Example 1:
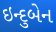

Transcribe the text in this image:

ઇન્દુબેન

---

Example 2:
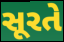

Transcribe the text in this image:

સૂરતે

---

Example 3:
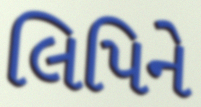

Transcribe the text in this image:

લિપિને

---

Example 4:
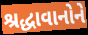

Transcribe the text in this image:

શ્રદ્ધાવાનોને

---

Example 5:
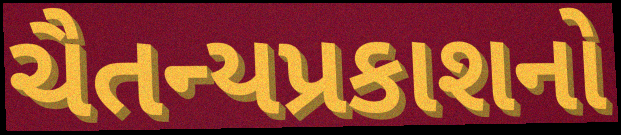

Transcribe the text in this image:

ચૈતન્યપ્રકાશનો